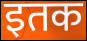
इतक